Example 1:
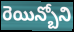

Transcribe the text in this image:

రెయిన్బోని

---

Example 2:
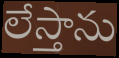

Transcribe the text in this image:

లేస్తాను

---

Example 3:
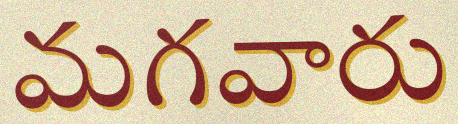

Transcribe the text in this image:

మగవారు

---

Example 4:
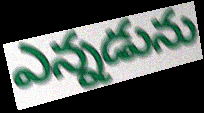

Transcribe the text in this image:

ఎన్నడును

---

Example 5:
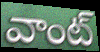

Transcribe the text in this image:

వాంట్